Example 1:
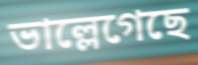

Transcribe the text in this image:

ভাল্লেগেছে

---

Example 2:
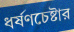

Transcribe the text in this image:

ধর্ষণচেষ্টার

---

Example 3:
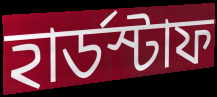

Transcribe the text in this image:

হার্ডস্টাফ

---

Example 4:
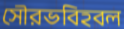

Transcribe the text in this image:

সৌরভবিহবল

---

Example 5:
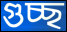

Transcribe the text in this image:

গুচ্ছ